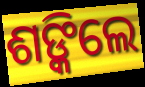
ଶଙ୍କିଲେ